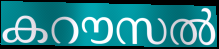
കറൗസൽ